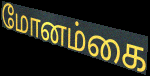
மோனம்கை